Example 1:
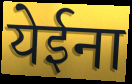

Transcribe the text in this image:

येईना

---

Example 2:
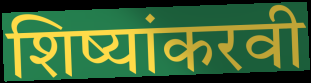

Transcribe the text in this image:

शिष्यांकरवी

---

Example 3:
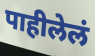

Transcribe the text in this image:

पाहीलेलं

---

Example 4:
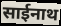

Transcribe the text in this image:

साईनाथ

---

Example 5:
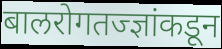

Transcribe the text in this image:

बालरोगतज्ज्ञांकडून